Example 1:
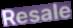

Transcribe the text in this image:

Resale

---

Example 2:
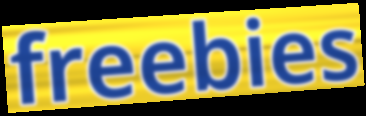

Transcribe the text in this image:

freebies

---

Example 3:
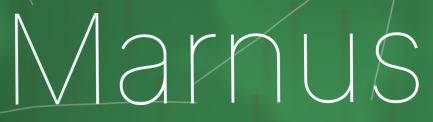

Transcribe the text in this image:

Marnus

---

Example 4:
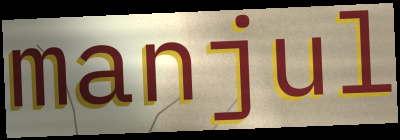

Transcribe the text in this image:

manjul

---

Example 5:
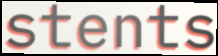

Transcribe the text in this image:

stents